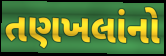
તણખલાંનો